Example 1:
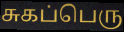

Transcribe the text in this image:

சுகப்பெரு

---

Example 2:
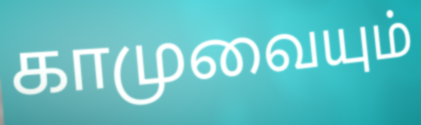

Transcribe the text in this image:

காமுவையும்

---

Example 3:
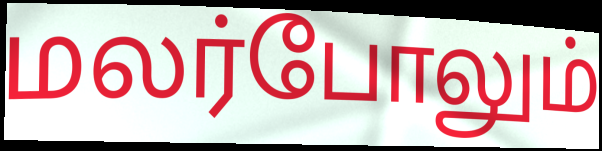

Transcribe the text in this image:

மலர்போலும்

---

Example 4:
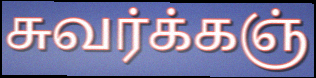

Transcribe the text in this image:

சுவர்க்கஞ்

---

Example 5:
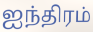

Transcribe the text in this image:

ஐந்திரம்